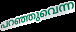
പറഞ്ഞുവെന്ന